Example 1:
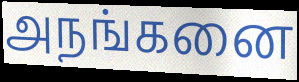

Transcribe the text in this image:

அநங்கனை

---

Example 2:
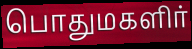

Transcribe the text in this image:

பொதுமகளிர்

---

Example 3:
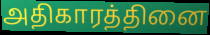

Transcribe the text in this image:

அதிகாரத்தினை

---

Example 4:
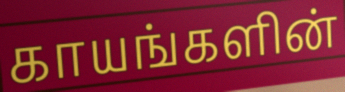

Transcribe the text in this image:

காயங்களின்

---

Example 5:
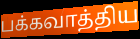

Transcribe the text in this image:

பக்கவாத்திய